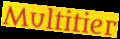
Multitier